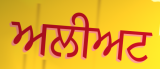
ਅਲੀਅਟ